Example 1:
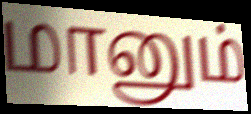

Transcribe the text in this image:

மானும்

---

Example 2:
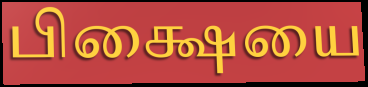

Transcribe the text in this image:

பிக்ஷையை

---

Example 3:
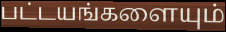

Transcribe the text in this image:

பட்டயங்களையும்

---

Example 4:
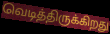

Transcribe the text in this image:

வெடித்திருக்கிறது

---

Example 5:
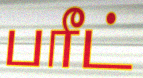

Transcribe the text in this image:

பரீட்